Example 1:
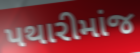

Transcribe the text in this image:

પથારીમાંજ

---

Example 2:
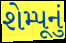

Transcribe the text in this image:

શેમ્પૂનું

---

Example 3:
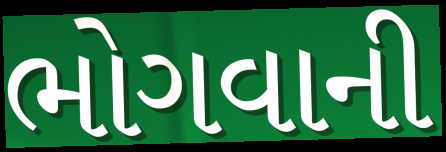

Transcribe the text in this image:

ભોગવાની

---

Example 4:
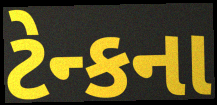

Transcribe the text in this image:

ટેન્કના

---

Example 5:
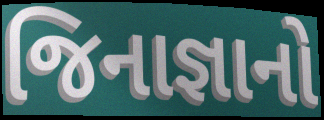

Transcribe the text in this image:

જિનાજ્ઞાનો